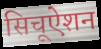
सिचूऐशन